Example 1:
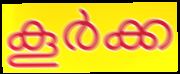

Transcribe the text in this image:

കൂർക്ക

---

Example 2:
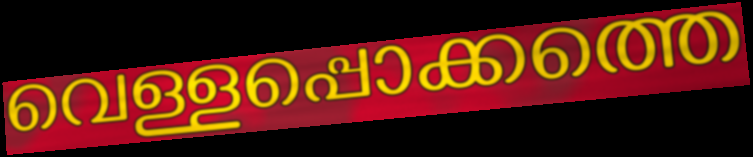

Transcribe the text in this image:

വെള്ളപ്പൊക്കത്തെ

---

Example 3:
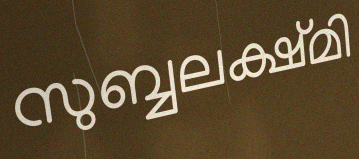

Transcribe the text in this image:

സുബ്ബലക്ഷ്മി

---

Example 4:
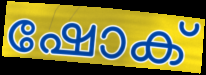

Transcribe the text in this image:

ഷോക്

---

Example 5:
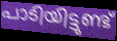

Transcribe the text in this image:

പാടിയിട്ടുണ്ട്